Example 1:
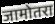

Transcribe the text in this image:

जामोतरा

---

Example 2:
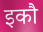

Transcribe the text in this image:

इकौ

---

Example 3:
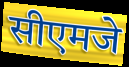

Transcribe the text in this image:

सीएमजे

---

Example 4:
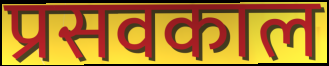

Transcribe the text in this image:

प्रसवकाल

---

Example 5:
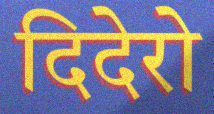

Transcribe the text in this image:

दिदेरो